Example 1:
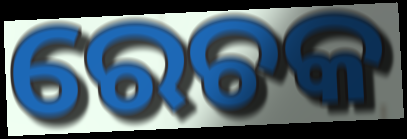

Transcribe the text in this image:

ରେଚକ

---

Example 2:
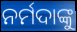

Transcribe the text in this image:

ନର୍ମଦାଙ୍କୁ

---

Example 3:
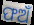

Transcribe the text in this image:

ଫଅଁ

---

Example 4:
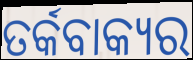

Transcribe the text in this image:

ତର୍କବାକ୍ୟର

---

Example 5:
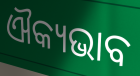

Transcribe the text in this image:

ଐକ୍ୟଭାବ